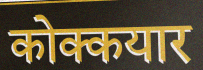
कोक्कयार